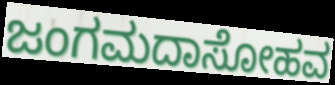
ಜಂಗಮದಾಸೋಹವ